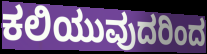
ಕಲಿಯುವುದರಿಂದ